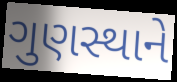
ગુણસ્થાને